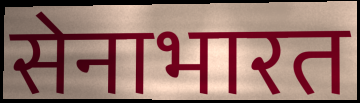
सेनाभारत